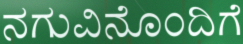
ನಗುವಿನೊಂದಿಗೆ